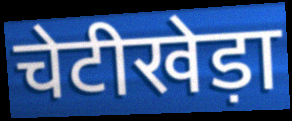
चेटीखेड़ा